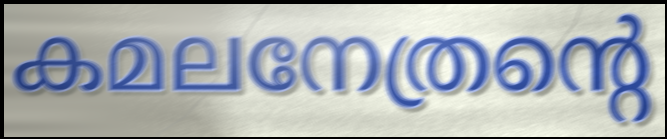
കമലനേത്രന്റെ